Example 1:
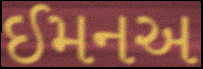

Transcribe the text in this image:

ઈમનઅ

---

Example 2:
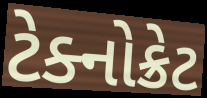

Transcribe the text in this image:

ટેક્નોક્રેટ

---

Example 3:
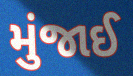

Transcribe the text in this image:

મુંજાઈ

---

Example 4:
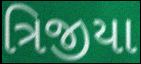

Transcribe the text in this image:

ત્રિજીયા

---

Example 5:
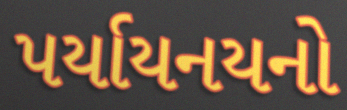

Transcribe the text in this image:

પર્યાયનયનો